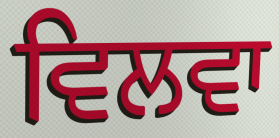
ਵਿਲਵਾ